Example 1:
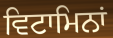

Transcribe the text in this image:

ਵਿਟਾਮਿਨਾਂ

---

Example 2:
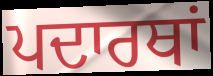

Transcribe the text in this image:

ਪਦਾਰਥਾਂ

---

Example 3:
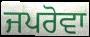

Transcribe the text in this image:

ਜਪਰੋਵਾ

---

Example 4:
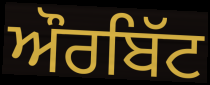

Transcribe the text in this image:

ਔਰਬਿੱਟ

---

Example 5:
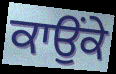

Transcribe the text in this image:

ਕਾਉਂਕੇ